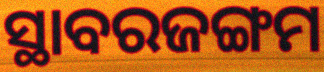
ସ୍ଥାବରଜଙ୍ଗମ